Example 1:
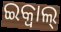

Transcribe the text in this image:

ଇକ୍ୱାଲ୍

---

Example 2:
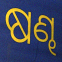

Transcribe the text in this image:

ଷଣ୍ଢ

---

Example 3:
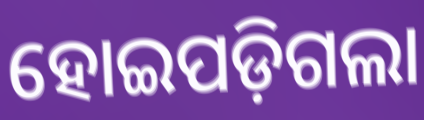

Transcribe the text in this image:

ହୋଇପଡ଼ିଗଲା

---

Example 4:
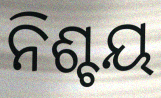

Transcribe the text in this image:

ନିଶ୍ଚୟ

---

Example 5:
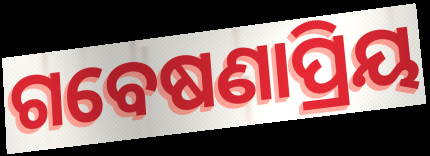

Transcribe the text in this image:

ଗବେଷଣାପ୍ରିୟ